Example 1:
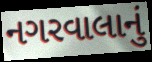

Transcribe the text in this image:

નગરવાલાનું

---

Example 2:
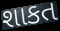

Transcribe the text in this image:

શાકત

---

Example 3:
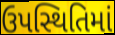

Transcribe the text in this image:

ઉપસ્થિતિમાં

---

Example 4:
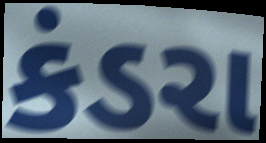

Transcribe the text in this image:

કંડરા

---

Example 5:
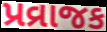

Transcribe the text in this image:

પ્રવ્રાજક